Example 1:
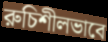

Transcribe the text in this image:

রুচিশীলভাবে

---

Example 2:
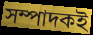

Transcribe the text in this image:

সম্পাদকই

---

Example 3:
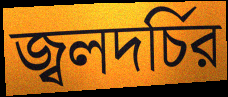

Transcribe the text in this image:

জ্বলদর্চির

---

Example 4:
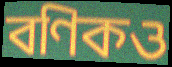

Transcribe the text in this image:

বণিকও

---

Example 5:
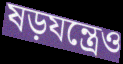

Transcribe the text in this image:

ষড়যন্ত্রেও